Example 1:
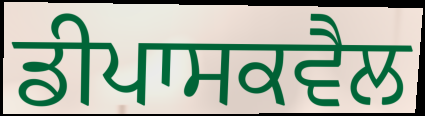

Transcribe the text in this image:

ਡੀਪਾਸਕਵੈਲ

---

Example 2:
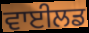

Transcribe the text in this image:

ਵਾਈਲਡ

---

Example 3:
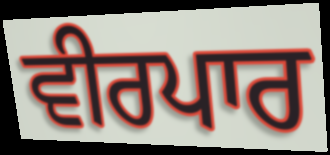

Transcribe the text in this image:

ਵੀਰਪਾਰ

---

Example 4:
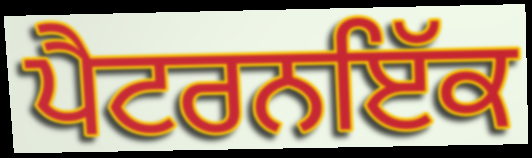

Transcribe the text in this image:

ਪੈਟਰਨਇੱਕ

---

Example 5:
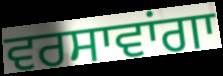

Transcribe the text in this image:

ਵਰਸਾਵਾਂਗਾ